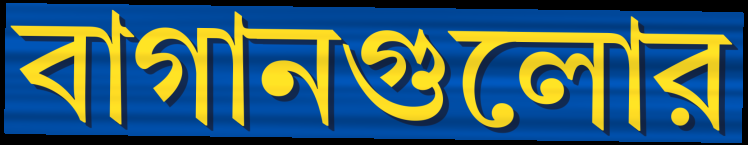
বাগানগুলোর